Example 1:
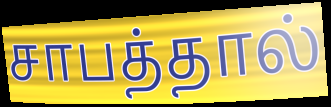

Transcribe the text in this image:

சாபத்தால்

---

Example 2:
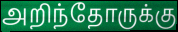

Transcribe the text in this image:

அறிந்தோருக்கு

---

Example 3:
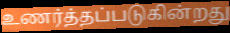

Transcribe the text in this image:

உணர்த்தப்படுகின்றது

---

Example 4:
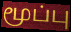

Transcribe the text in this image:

மூப்பு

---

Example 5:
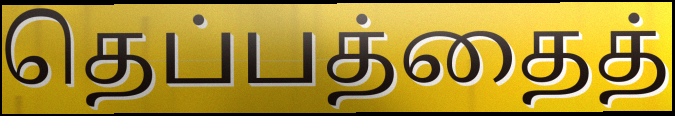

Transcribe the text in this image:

தெப்பத்தைத்